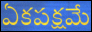
ఏకపక్షమే